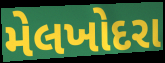
મેલખોદરા